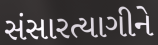
સંસારત્યાગીને